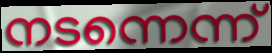
നടന്നെന്ന്